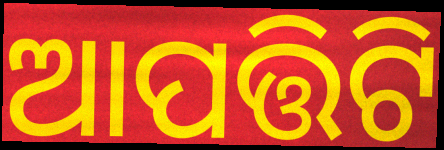
ଆପତ୍ତିଟି